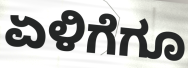
ಏಳಿಗೆಗೂ